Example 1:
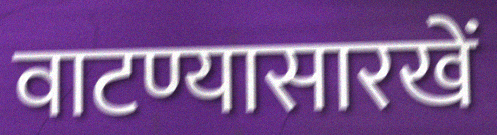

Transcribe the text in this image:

वाटण्यासारखें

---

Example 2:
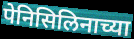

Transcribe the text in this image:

पेनिसिलिनाच्या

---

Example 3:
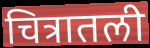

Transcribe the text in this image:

चित्रातली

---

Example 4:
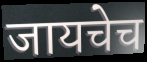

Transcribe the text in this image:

जायचेच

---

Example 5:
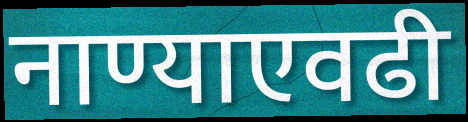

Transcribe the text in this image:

नाण्याएवढी